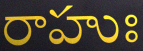
రాహుః